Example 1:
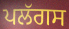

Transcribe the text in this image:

ਪਲੱਗਸ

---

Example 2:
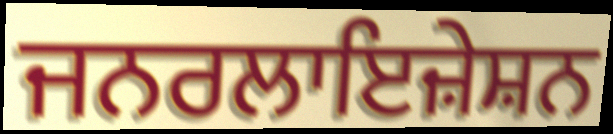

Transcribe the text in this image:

ਜਨਰਲਾਇਜ਼ੇਸ਼ਨ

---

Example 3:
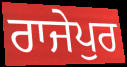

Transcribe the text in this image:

ਰਾਜੇਪੁਰ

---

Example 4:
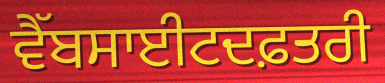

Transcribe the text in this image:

ਵੈੱਬਸਾਈਟਦਫ਼ਤਰੀ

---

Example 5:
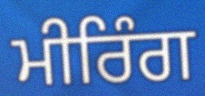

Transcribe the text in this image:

ਮੀਰਿੰਗ